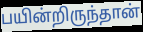
பயின்றிருந்தான்